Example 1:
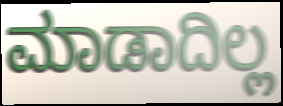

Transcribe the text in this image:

ಮಾಡಾದಿಲ್ಲ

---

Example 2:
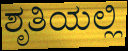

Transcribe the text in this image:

ಶೃತಿಯಲ್ಲಿ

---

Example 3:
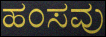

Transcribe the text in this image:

ಹಂಸವು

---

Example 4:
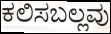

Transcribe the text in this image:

ಕಲಿಸಬಲ್ಲವು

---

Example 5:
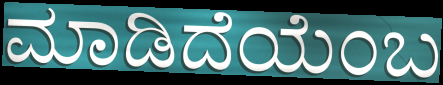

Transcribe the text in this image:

ಮಾಡಿದೆಯೆಂಬ